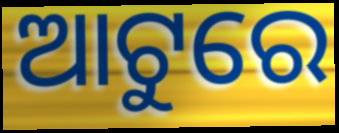
ଆଟୁରେ